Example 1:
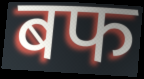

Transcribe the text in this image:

बफ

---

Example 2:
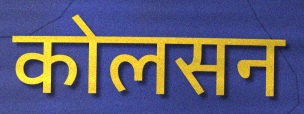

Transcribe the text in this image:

कोलसन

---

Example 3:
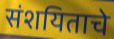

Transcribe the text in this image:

संशयिताचे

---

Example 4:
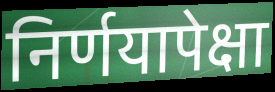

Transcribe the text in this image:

निर्णयापेक्षा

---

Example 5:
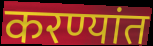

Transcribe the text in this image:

करण्यांत